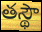
తస్థౌ